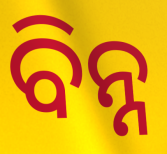
ବିନ୍ନ